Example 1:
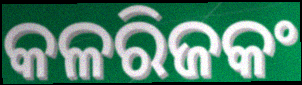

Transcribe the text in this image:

କଳରିଜକଂ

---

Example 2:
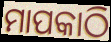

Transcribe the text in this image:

ମାପକାଠି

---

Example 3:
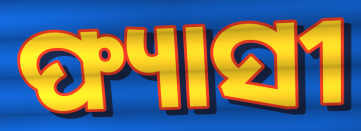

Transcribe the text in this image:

ଫ୍ୟାସୀ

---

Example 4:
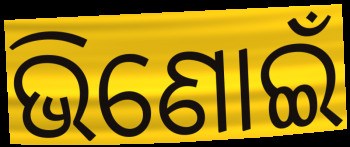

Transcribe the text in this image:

ଭିଣୋଇଁ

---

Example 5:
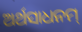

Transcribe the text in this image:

ଅର୍ଥସାଧନମ୍